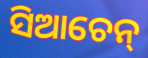
ସିଆଚେନ୍